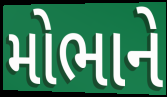
મોભાને